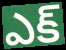
ఎక్